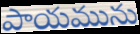
పాయమును